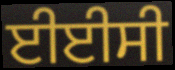
ਈਈਸੀ